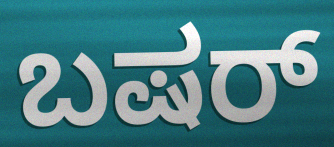
ಬಷರ್